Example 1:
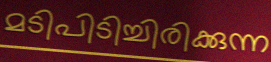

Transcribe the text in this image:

മടിപിടിച്ചിരിക്കുന്ന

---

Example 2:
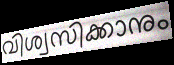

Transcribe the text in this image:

വിശ്വസിക്കാനും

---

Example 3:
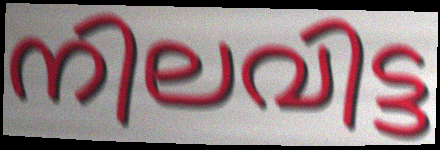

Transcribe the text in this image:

നിലവിട്ട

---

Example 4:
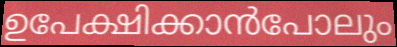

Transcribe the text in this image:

ഉപേക്ഷിക്കാൻപോലും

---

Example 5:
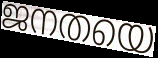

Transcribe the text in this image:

ജനതയെ